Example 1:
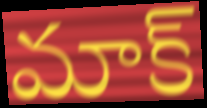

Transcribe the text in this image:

మాక్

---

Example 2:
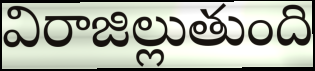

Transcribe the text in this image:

విరాజిల్లుతుంది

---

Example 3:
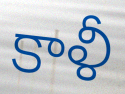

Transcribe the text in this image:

కాళీ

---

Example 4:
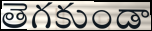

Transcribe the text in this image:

తెగకుండా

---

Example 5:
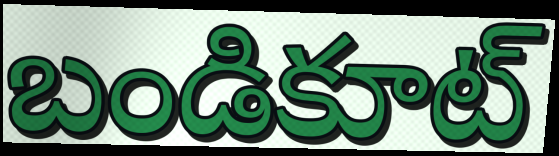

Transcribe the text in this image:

బండికూట్